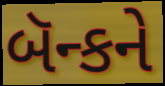
બૅન્કને